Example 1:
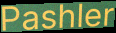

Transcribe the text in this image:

Pashler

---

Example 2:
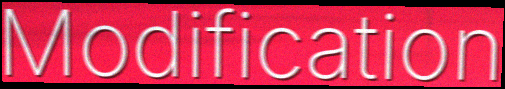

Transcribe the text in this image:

Modification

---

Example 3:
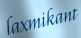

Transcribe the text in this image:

laxmikant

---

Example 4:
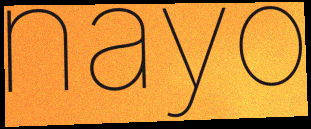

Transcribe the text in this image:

nayo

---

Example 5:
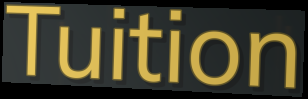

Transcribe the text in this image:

Tuition